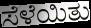
ಸೆಳೆಯಿತು